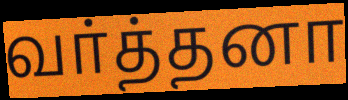
வர்த்தனா